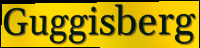
Guggisberg